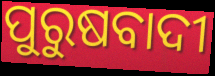
ପୁରୁଷବାଦୀ